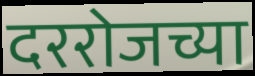
दररोजच्या